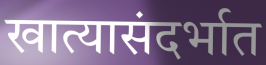
खात्यासंदर्भात